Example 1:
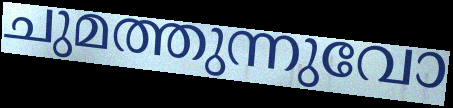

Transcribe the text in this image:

ചുമത്തുന്നുവോ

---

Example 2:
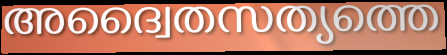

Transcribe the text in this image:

അദ്വൈതസത്യത്തെ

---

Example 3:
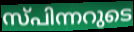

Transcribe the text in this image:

സ്പിന്നറുടെ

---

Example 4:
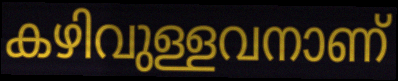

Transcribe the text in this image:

കഴിവുള്ളവനാണ്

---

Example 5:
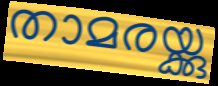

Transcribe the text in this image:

താമരയ്ക്കു